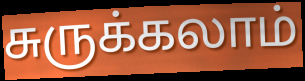
சுருக்கலாம்